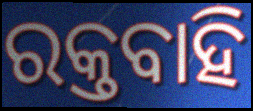
ରକ୍ତବାହି